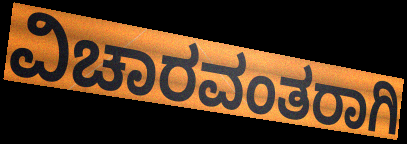
ವಿಚಾರವಂತರಾಗಿ